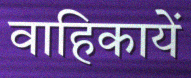
वाहिकायें